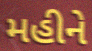
મહીને